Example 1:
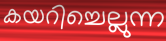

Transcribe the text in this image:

കയറിച്ചെല്ലുന്ന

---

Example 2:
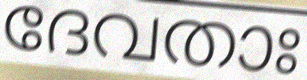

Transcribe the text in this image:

ദേവതാഃ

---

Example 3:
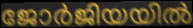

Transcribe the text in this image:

ജോർജിയയിൽ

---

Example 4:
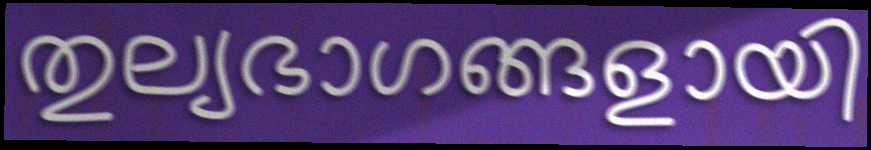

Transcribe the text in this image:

തുല്യഭാഗങ്ങളായി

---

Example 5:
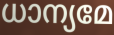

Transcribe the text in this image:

ധാന്യമേ